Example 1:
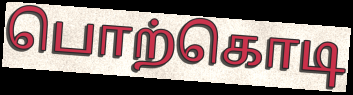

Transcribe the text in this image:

பொற்கொடி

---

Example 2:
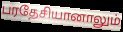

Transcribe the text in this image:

பரதேசியானாலும்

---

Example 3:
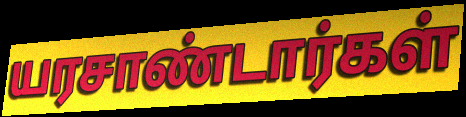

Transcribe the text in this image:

யரசாண்டார்கள்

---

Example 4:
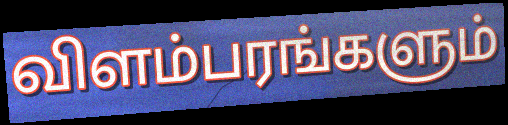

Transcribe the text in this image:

விளம்பரங்களும்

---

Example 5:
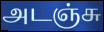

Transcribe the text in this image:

அடஞ்சு